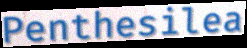
Penthesilea